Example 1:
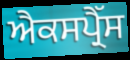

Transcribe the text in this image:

ਐਕਸਪ੍ਰੈੱਸ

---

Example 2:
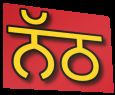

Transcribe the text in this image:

ਨੱਠ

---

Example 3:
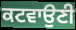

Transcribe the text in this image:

ਕਟਵਾਉਣੀ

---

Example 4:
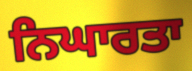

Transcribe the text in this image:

ਨਿਘਾਰਤਾ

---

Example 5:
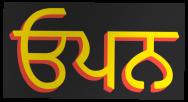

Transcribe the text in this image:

ਓਪਨ